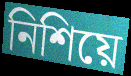
নিশিয়ে